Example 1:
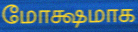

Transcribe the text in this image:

மோக்ஷமாக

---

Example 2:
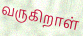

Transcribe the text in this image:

வருகிறாள்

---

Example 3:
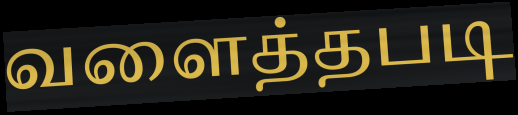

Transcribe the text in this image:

வளைத்தபடி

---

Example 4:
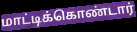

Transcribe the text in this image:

மாட்டிக்கொண்டார்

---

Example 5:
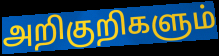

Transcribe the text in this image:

அறிகுறிகளும்